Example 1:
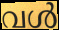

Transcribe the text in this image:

വൾ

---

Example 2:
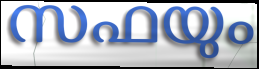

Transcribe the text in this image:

സഫയും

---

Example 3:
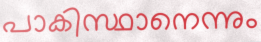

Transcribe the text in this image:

പാകിസ്ഥാനെന്നും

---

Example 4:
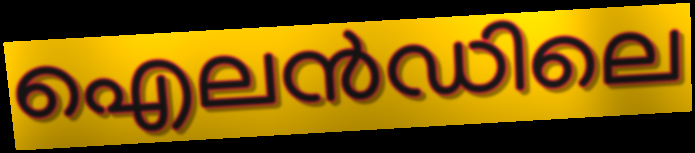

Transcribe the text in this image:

ഐലൻഡിലെ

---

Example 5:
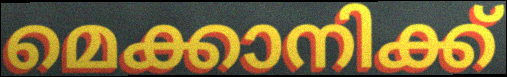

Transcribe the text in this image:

മെക്കാനിക്ക്